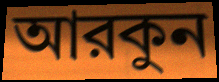
আরকুন